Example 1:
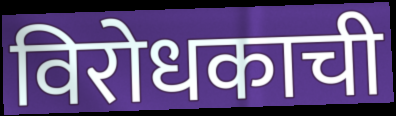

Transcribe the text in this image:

विरोधकाची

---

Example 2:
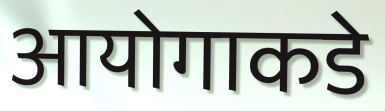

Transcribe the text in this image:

आयोगाकडे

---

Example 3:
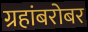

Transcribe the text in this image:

ग्रहांबरोबर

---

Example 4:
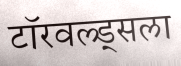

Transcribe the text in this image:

टॉरवल्ड्सला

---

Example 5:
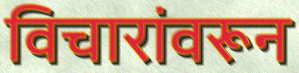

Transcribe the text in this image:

विचारांवरून